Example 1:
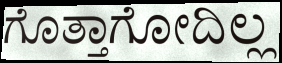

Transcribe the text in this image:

ಗೊತ್ತಾಗೋದಿಲ್ಲ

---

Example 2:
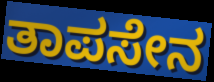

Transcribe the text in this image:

ತಾಪಸೇನ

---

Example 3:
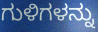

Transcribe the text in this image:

ಗುಳಿಗಳನ್ನು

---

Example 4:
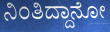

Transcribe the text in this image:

ನಿಂತಿದ್ದಾನೋ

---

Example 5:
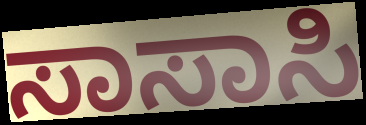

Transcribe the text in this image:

ಸಾಸಾಸಿ